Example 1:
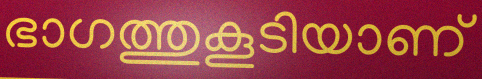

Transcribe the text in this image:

ഭാഗത്തുകൂടിയാണ്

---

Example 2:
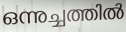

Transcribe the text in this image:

ഒന്നുച്ചത്തിൽ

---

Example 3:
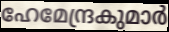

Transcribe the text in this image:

ഹേമേന്ദ്രകുമാർ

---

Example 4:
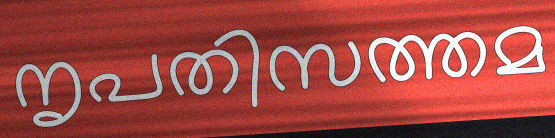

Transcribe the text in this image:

നൃപതിസത്തമ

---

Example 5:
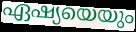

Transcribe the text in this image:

ഏഷ്യയെയും